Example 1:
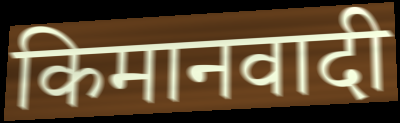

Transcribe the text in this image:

किमानवादी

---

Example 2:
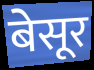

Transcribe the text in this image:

बेसूर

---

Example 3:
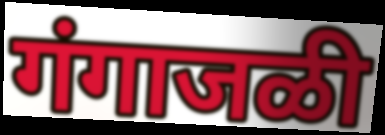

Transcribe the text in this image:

गंगाजळी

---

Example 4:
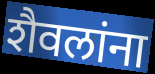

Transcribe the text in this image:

शैवलांना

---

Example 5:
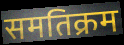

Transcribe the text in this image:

समतिक्रम